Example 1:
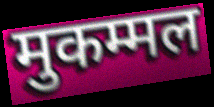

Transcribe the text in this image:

मुकम्मल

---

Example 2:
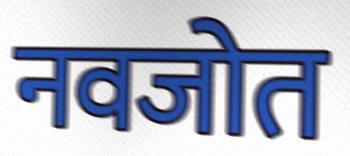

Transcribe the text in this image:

नवजोत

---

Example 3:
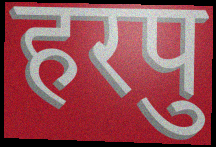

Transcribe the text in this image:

हरपु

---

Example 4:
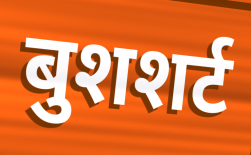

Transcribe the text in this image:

बुशशर्ट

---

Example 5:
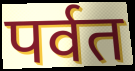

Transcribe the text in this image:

पर्वत